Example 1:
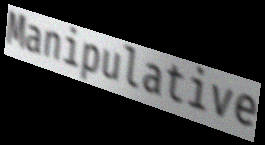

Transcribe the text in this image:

Manipulative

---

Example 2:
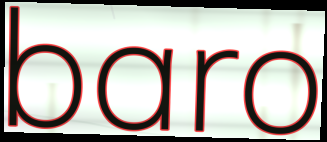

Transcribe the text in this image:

baro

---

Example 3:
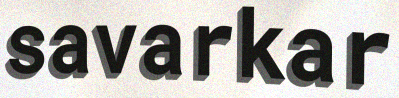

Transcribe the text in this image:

savarkar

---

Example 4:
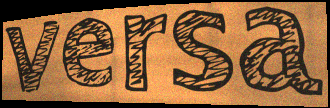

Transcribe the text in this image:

versa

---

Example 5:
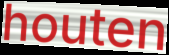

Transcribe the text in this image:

houten